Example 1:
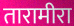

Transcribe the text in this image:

तारामीरा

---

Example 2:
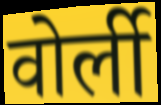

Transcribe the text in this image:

वोर्ली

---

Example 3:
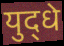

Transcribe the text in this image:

युद्धे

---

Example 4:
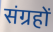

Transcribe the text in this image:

संग्रहों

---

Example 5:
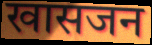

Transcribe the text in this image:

खासजन